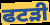
ਫਟੜੀ